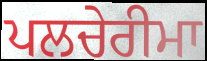
ਪਲਚੇਰੀਮਾ